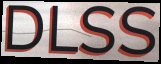
DLSS